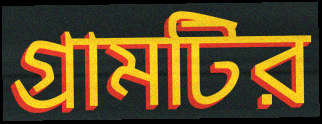
গ্রামটির